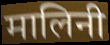
मालिनी